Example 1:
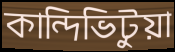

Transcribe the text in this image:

কান্দিভিটুয়া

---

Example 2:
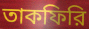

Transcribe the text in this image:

তাকফিরি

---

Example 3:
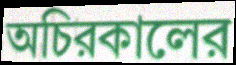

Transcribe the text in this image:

অচিরকালের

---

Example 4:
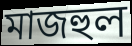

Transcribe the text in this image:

মাজহুল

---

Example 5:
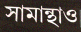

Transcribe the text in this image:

সামান্থাও